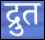
द्रुत